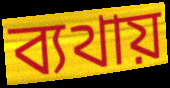
ব্যথায়